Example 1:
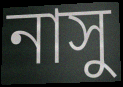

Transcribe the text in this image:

নাসু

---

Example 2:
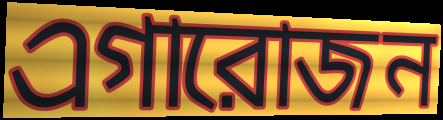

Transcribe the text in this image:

এগারোজন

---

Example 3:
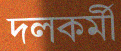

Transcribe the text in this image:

দলকর্মী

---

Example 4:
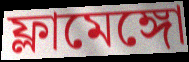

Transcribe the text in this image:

ফ্লামেঙ্গো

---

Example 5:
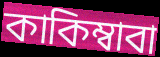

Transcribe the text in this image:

কাকিম্বাবা